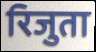
रिजुता